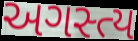
અગસ્ત્ય